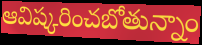
ఆవిష్కరించబోతున్నాం